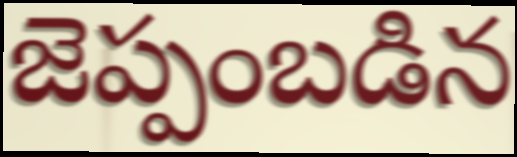
జెప్పంబడిన